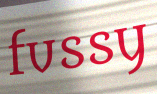
fussy